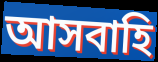
আসবাহি